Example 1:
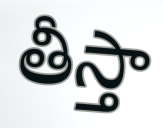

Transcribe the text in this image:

తీస్తా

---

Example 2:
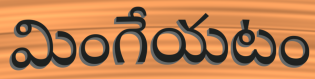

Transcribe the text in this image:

మింగేయటం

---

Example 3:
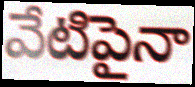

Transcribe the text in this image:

వేటిపైనా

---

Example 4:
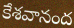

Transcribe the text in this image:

కేశవానంద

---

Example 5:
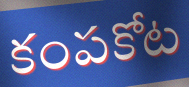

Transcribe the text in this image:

కంపకోట